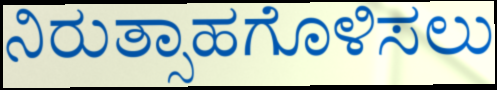
ನಿರುತ್ಸಾಹಗೊಳಿಸಲು